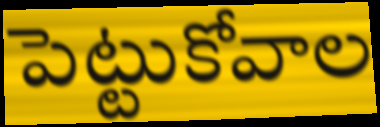
పెట్టుకోవాల